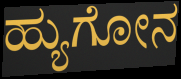
ಹ್ಯುಗೋನ